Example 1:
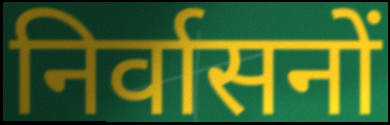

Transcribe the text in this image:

निर्वासनों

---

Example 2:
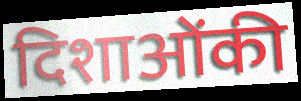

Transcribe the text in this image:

दिशाओंकी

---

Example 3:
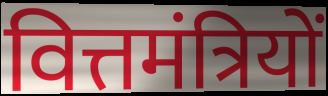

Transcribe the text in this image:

वित्तमंत्रियों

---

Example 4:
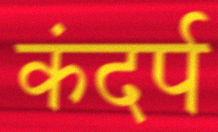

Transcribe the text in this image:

कंदर्प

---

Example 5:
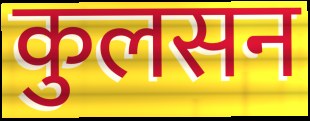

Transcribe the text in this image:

कुलसन